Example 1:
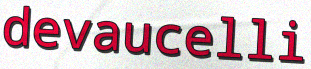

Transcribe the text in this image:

devaucelli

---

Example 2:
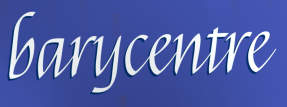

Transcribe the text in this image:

barycentre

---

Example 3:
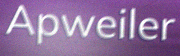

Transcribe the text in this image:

Apweiler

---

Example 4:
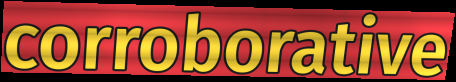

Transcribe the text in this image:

corroborative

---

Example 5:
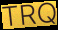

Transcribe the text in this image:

TRQ